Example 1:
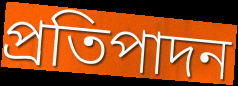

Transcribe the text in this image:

প্ৰতিপাদন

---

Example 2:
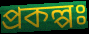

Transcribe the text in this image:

প্ৰকল্পঃ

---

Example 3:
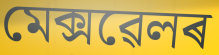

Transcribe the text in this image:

মেক্সৱেলৰ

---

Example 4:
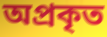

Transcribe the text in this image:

অপ্ৰকৃত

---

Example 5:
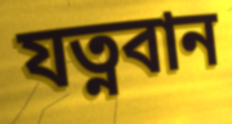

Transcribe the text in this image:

যত্নবান